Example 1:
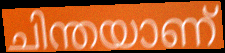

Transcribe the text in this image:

ചിന്തയാണ്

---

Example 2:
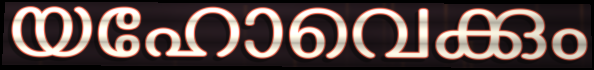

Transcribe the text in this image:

യഹോവെക്കും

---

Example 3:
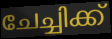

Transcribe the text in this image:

ചേച്ചിക്ക്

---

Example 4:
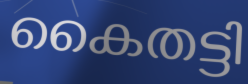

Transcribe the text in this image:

കൈതട്ടി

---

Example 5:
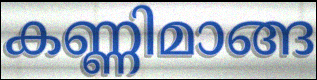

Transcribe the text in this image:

കണ്ണിമാങ്ങ